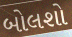
બોલશો